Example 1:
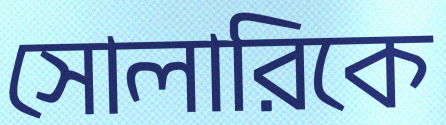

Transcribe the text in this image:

সোলারিকে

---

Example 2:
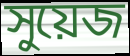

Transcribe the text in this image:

সুয়েজ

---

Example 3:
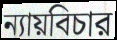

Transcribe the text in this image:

ন্যায়বিচার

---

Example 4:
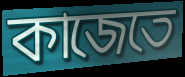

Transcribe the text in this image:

কাজেতে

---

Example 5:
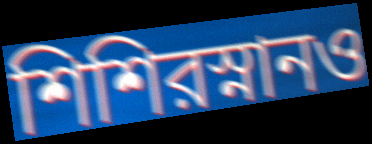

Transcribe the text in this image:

শিশিরস্নানও